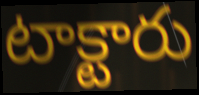
టాక్టారు